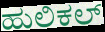
ಹುಲಿಕಲ್